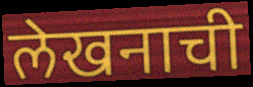
लेखनाची